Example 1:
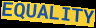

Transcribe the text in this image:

EQUALITY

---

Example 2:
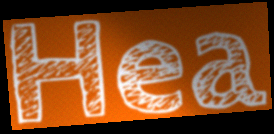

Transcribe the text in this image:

Hea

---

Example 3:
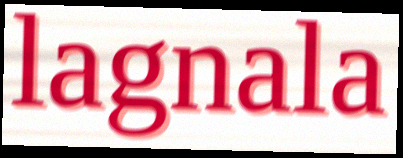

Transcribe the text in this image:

lagnala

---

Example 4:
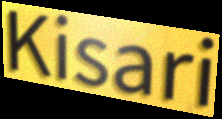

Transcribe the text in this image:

Kisari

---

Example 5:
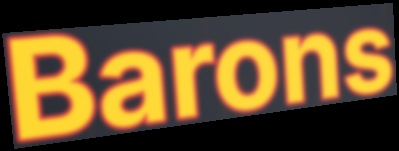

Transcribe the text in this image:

Barons